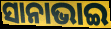
ସାନାଭାଇ